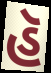
હૅ